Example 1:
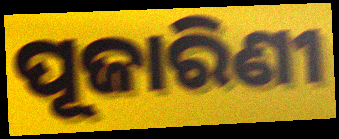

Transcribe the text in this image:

ପୂଜାରିଣୀ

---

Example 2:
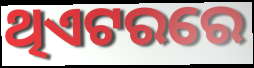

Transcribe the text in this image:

ଥିଏଟରରେ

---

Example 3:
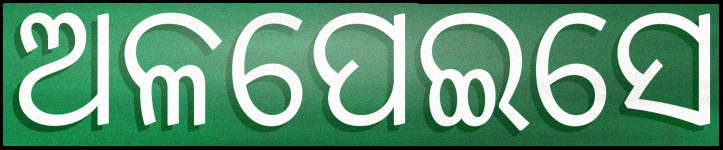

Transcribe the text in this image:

ଅଳପେଇସେ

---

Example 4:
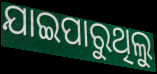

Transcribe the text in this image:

ଯାଇପାରୁଥିଲୁ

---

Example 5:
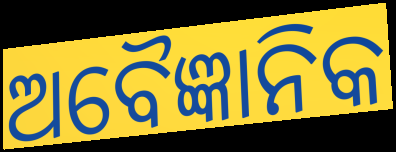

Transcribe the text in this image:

ଅବୈଜ୍ଞାନିକ